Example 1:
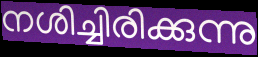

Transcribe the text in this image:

നശിച്ചിരിക്കുന്നു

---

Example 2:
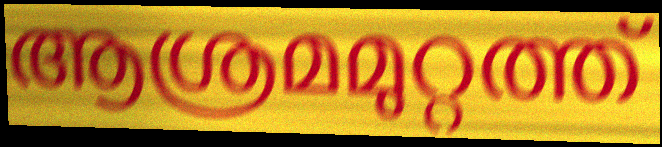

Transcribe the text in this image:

ആശ്രമമുറ്റത്ത്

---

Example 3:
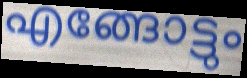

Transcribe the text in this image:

എങ്ങോട്ടും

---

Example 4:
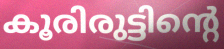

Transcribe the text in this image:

കൂരിരുട്ടിന്റെ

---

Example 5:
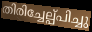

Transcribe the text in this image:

തിരിച്ചേല്പ്പിച്ചു